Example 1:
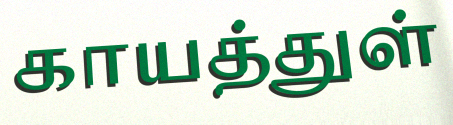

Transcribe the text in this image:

காயத்துள்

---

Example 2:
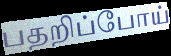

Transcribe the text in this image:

பதறிப்போய்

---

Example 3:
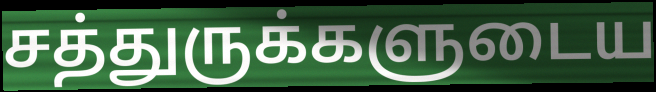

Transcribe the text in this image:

சத்துருக்களுடைய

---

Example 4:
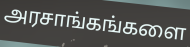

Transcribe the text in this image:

அரசாங்கங்களை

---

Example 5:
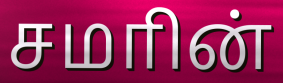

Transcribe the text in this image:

சமரின்